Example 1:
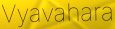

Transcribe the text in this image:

Vyavahara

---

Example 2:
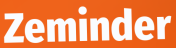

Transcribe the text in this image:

Zeminder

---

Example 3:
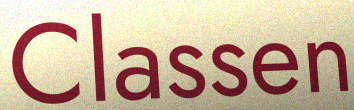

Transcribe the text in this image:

Classen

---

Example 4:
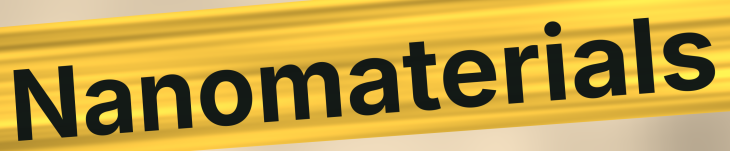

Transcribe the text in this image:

Nanomaterials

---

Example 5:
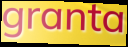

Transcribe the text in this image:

granta